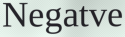
Negatve